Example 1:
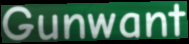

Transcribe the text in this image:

Gunwant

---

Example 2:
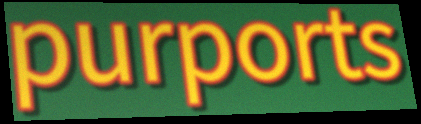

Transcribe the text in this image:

purports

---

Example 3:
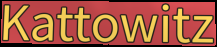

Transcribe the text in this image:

Kattowitz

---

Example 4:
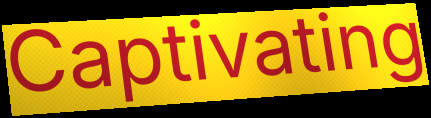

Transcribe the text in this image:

Captivating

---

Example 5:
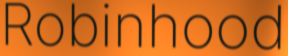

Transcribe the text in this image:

Robinhood